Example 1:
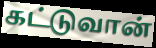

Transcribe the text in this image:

கட்டுவான்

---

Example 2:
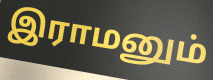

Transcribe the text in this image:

இராமனும்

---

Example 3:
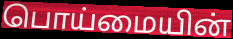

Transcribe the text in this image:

பொய்மையின்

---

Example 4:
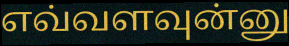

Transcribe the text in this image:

எவ்வளவுன்னு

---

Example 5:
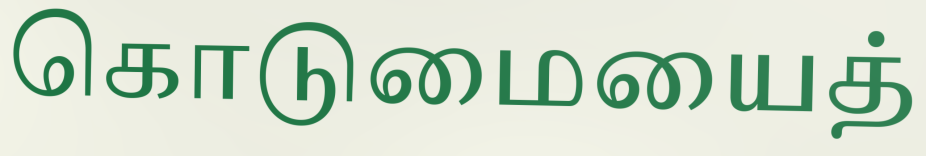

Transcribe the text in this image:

கொடுமையைத்